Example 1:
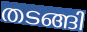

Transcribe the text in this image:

തടങ്ങി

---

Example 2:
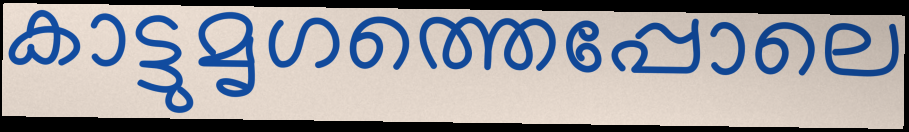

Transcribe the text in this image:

കാട്ടുമൃഗത്തെപ്പോലെ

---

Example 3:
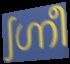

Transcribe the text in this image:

ഽഗ്നീ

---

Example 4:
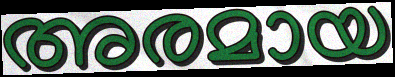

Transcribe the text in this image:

അരമായ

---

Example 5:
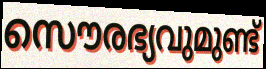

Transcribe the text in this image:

സൌരഭ്യവുമുണ്ട്